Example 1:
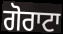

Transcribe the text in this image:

ਗੋਰਾਟਾ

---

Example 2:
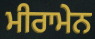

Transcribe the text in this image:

ਮੀਰਾਮੇਨ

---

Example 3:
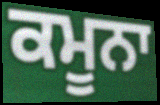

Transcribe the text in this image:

ਕਮੂਨਾ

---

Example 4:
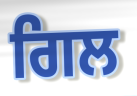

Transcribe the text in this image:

ਗਿਲ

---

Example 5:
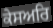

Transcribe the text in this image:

ਕੇਸਅਰਿ